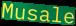
Musale